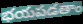
భయపడతాం